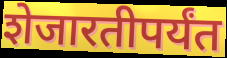
शेजारतीपर्यंत